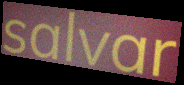
salvar